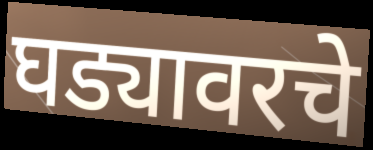
घड्यावरचे